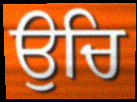
ਉਚਿ